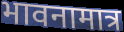
भावनामात्र